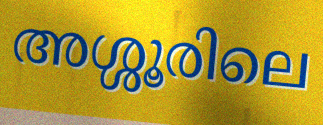
അശ്ശൂരിലെ